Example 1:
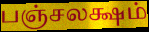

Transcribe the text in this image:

பஞ்சலக்ஷம்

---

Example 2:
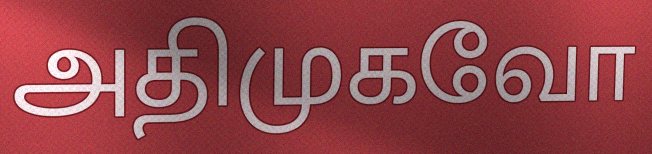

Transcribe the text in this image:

அதிமுகவோ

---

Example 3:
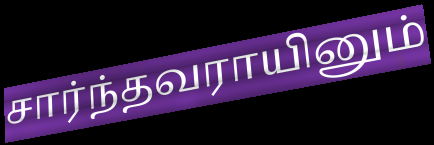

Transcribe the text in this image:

சார்ந்தவராயினும்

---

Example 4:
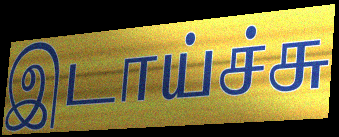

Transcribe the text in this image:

இடாய்ச்சு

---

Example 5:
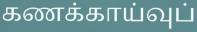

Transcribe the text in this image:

கணக்காய்வுப்